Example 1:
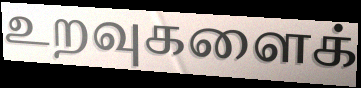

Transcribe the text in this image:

உறவுகளைக்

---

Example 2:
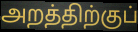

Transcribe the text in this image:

அறத்திற்குப்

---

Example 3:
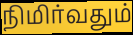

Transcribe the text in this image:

நிமிர்வதும்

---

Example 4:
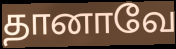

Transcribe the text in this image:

தானாவே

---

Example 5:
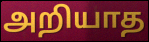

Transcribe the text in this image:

அறியாத